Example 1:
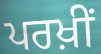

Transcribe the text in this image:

ਪਰਖ਼ੀਂ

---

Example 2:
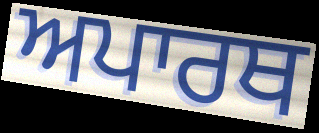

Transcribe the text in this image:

ਅਪਾਰਥ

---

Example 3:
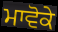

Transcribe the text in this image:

ਮਾਵੋਕੇ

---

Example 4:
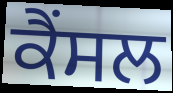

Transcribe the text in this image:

ਕੈਂਸਲ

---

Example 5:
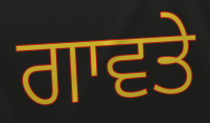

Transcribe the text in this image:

ਗਾਵਤੇ